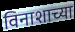
विनाशाच्या